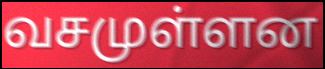
வசமுள்ளன